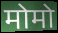
मोमो